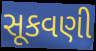
સૂકવણી